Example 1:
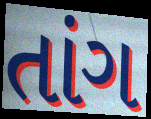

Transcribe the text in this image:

તાંગ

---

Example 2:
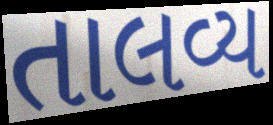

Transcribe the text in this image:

તાલવ્ય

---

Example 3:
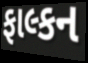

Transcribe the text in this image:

ફાલ્કન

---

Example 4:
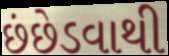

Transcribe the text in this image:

છંછેડવાથી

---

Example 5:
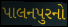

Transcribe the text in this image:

પાલનપુરનો